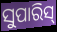
ସୁପାରିସ୍